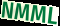
NMML